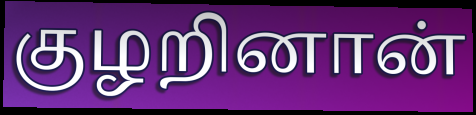
குழறினான்